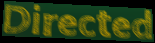
Directed